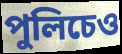
পুলিচেও